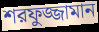
শরফুজ্জামান